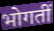
भोगतीं